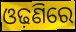
ଓଢ଼ଣିରେ